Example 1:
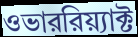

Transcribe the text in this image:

ওভাররিয়্যাক্ট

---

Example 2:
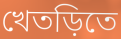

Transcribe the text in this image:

খেতড়িতে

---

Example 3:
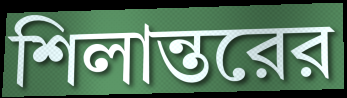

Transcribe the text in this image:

শিলান্তরের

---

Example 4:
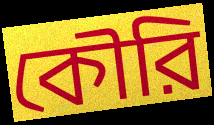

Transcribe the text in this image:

কৌরি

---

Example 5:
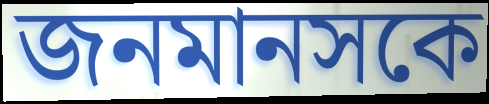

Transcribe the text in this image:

জনমানসকে